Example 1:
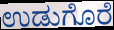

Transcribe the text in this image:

ಉಡುಗೊರೆ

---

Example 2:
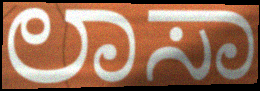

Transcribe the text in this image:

ಲಾಸಾ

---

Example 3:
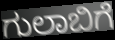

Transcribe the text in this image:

ಗುಲಾಬಿಗೆ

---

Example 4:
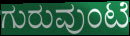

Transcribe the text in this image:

ಗುರುವುಂಟೆ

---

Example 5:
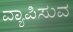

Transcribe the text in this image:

ವ್ಯಾಪಿಸುವ